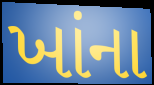
ખાંના